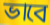
ভাবে